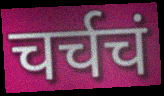
चर्चचं